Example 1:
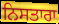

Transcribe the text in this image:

ਨਿਸਤਾਰਾ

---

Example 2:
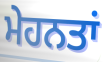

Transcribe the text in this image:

ਮੇਹਨਤਾਂ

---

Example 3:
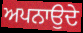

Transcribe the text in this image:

ਅਪਨਾਉਦੇ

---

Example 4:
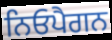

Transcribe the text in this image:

ਨਿਓਪੈਗਨ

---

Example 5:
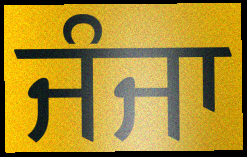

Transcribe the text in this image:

ਜੰਜਾ